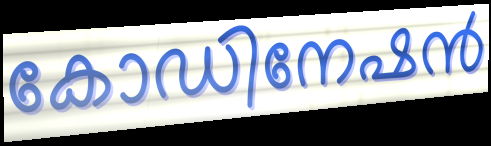
കോഡിനേഷൻ